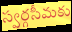
స్వర్గసీమకు